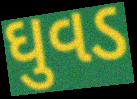
ઘુવડ